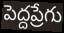
పెద్దప్రేగు